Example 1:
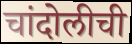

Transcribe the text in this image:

चांदोलीची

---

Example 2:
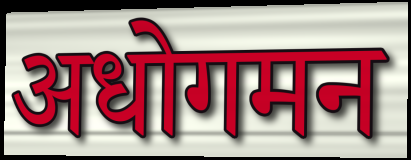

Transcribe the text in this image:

अधोगमन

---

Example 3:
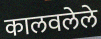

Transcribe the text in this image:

कालवलेले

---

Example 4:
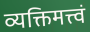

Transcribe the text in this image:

व्यक्तिमत्त्वं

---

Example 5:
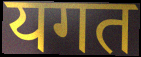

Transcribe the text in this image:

यगत